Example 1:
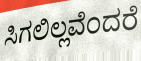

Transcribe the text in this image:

ಸಿಗಲಿಲ್ಲವೆಂದರೆ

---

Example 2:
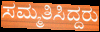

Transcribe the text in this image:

ಸಮ್ಮತಿಸಿದ್ದರು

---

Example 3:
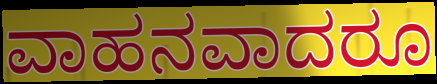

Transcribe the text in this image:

ವಾಹನವಾದರೂ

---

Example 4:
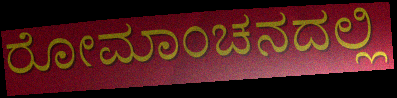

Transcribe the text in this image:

ರೋಮಾಂಚನದಲ್ಲಿ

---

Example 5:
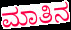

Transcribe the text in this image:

ಮಾತಿನ